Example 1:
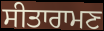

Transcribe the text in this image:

ਸੀਤਾਰਾਮਣ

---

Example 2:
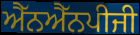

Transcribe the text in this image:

ਐੱਨਐੱਨਪੀਜੀ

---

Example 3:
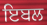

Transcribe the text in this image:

ਇਬਲ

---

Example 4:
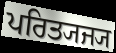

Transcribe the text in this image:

ਪਰਿਤ੍ਯਜ੍ਯ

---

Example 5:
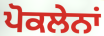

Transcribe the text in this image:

ਪੋਕਲੇਨਾਂ